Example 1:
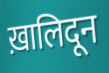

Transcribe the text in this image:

ख़ालिदून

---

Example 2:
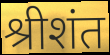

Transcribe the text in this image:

श्रीशंत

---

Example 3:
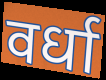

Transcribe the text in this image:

वर्धा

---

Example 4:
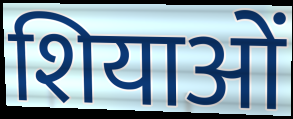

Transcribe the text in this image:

शियाओं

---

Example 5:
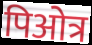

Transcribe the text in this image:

पिओत्र